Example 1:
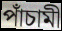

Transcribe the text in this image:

পাঁচামী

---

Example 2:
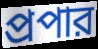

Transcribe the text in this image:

প্রপার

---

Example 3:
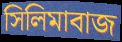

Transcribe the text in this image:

সিলিমাবাজ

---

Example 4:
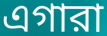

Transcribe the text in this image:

এগারা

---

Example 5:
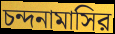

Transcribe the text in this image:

চন্দনামাসির